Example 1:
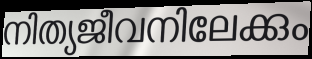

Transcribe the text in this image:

നിത്യജീവനിലേക്കും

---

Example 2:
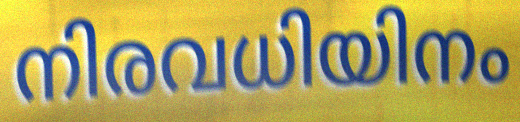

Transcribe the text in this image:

നിരവധിയിനം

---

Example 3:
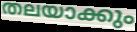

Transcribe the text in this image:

തലയാക്കും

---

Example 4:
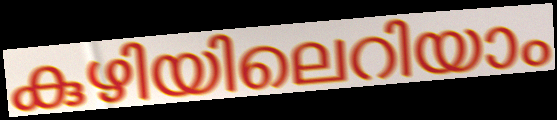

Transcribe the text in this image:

കുഴിയിലെറിയാം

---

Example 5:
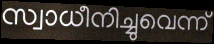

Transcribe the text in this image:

സ്വാധീനിച്ചുവെന്ന്